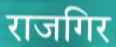
राजगिर